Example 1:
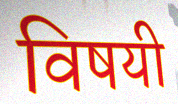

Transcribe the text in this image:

विषयी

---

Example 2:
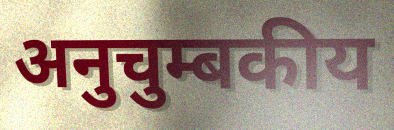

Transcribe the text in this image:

अनुचुम्बकीय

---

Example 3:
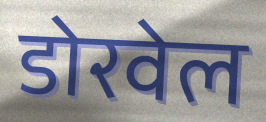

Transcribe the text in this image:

डोरवेल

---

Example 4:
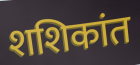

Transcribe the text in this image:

शशिकांत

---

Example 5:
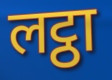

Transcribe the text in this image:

लट्ठा